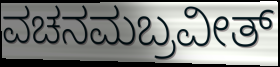
ವಚನಮಬ್ರವೀತ್